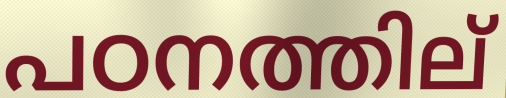
പഠനത്തില്